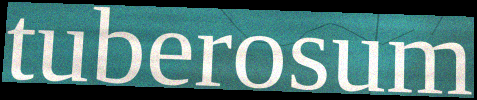
tuberosum